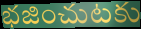
భజించుటకు